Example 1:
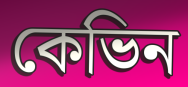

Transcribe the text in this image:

কেভিন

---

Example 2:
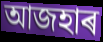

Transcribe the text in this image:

আজহাৰ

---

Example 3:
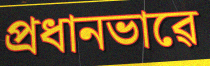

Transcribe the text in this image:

প্ৰধানভাৱে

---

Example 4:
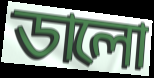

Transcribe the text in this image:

ডালো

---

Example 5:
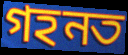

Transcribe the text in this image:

গহনত